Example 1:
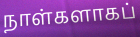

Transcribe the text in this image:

நாள்களாகப்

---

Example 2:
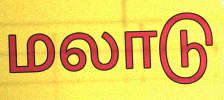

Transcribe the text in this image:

மலாடு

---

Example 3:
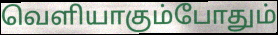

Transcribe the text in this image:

வெளியாகும்போதும்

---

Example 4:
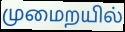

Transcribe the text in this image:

முமைறயில்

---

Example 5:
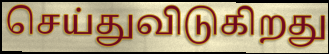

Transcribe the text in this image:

செய்துவிடுகிறது